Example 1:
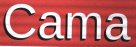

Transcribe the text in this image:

Cama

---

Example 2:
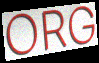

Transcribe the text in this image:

ORG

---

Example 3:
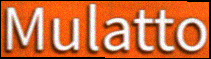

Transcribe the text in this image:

Mulatto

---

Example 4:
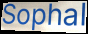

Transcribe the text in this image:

Sophal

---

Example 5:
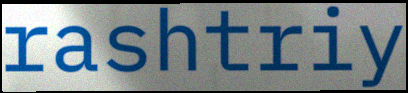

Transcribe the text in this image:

rashtriy